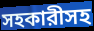
সহকারীসহ